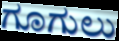
ಗೂಗುಲು